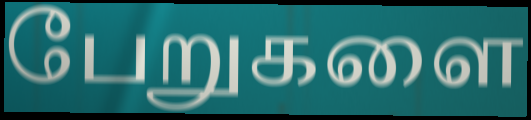
பேறுகளை